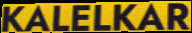
KALELKAR